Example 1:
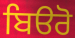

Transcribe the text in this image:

ਬਿੳਰੋ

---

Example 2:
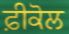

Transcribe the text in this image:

ਫ਼ੀਕੋਲ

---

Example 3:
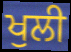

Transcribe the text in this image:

ਖੁਲੀ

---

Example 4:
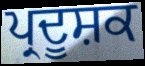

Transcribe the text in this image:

ਪ੍ਰਦੂਸ਼ਕ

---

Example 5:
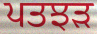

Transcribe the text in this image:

ਪਤਝੜ